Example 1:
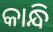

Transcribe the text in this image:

କାନ୍ଧି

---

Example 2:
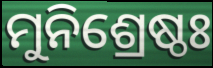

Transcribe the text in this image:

ମୁନିଶ୍ରେଷ୍ଠଃ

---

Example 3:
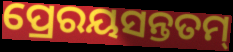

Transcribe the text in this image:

ପ୍ରେରୟସନ୍ତତମ୍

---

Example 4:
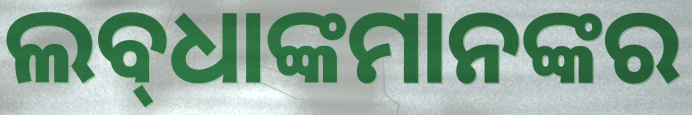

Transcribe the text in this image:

ଲବ୍‌ଧାଙ୍କମାନଙ୍କର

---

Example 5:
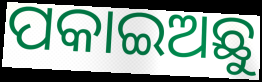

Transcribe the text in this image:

ପକାଇଅଛୁ